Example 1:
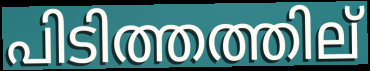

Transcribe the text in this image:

പിടിത്തത്തില്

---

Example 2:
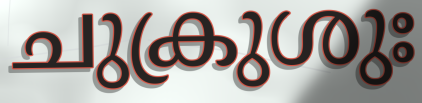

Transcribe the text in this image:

ചുക്രുശുഃ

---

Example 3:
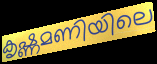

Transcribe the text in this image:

കൃഷ്ണമണിയിലെ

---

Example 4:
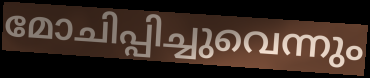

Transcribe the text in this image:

മോചിപ്പിച്ചുവെന്നും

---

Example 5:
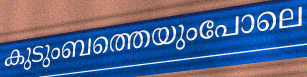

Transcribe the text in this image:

കുടുംബത്തെയുംപോലെ